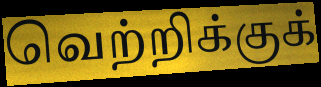
வெற்றிக்குக்